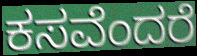
ಕಸವೆಂದರೆ